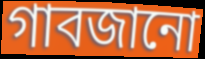
গাবজানো